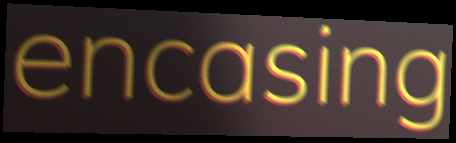
encasing